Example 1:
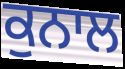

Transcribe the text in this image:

ਕੁਨਾਲ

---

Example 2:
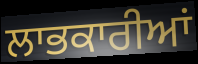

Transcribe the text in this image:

ਲਾਭਕਾਰੀਆਂ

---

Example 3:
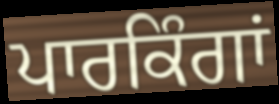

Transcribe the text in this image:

ਪਾਰਕਿੰਗਾਂ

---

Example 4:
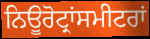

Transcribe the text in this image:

ਨਿਊਰੋਟ੍ਰਾਂਸਮੀਟਰਾਂ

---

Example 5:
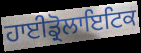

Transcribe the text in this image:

ਹਾਈਡ੍ਰੋਲਾਇਟਿਕ